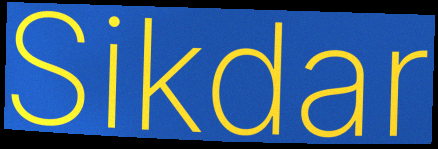
Sikdar